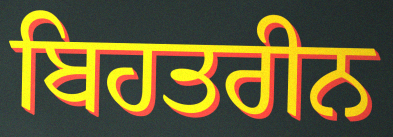
ਬਿਹਤਰੀਨ